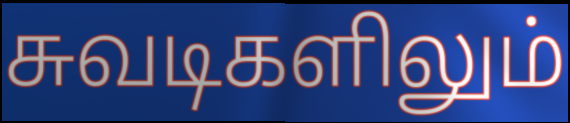
சுவடிகளிலும்